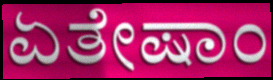
ಏತೇಷಾಂ